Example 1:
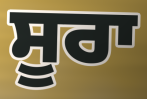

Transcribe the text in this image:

ਸੂਰਾ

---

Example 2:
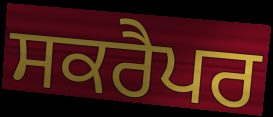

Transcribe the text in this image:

ਸਕਰੈਪਰ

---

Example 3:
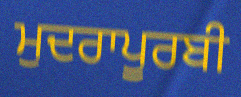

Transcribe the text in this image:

ਮੁਦਰਾਪੂਰਬੀ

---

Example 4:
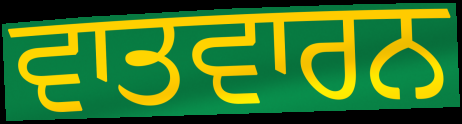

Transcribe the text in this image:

ਵਾਤਵਾਰਨ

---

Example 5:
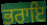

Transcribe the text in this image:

ਭਰਾਇ